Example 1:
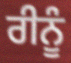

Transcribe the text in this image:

ਰੀਨੂੰ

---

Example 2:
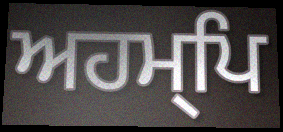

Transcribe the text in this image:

ਅਹਮ੍ਪਿ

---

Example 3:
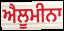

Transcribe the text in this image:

ਐਲੂਮੀਨਾ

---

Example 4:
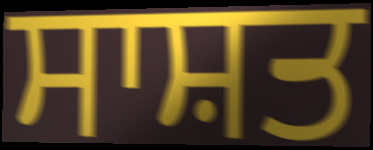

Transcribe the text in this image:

ਸਾਸ਼ਤ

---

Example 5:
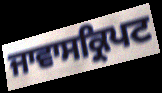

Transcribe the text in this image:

ਜਾਵਾਸਕ੍ਰਿਪਟ